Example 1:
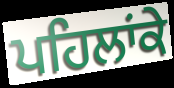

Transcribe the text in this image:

ਪਹਿਲਾਂਕੇ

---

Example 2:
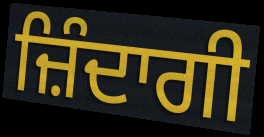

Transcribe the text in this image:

ਜ਼ਿੰਦਾਗੀ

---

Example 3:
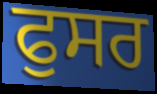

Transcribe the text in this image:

ਫੁਸਰ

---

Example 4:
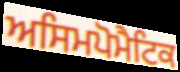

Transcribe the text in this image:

ਅਸਿਮਪੋਮੈਟਿਕ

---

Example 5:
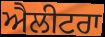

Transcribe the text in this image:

ਐਲੀਟਰਾ